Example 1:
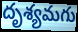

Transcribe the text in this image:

దృశ్యమగు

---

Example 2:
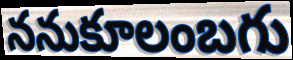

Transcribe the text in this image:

ననుకూలంబగు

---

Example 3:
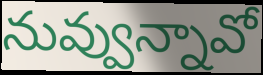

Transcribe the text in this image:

నువ్వున్నావో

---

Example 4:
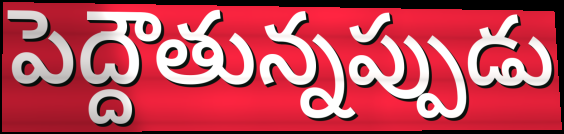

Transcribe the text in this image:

పెద్దౌతున్నప్పుడు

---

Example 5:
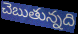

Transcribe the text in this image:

చెబుతున్నది